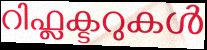
റിഫ്ലക്ടറുകൾ